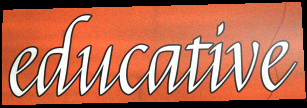
educative